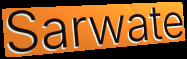
Sarwate